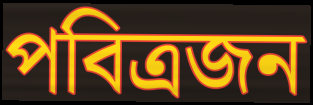
পবিত্রজন